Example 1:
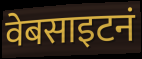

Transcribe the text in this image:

वेबसाइटनं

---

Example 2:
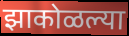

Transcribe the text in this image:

झाकोळल्या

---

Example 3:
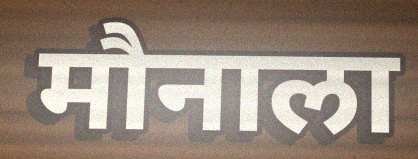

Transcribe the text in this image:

मौनाला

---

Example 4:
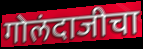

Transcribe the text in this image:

गोलंदाजीचा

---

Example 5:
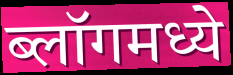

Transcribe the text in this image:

ब्लॉगमध्ये